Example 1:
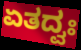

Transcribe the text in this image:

ಏತದ್ವಃ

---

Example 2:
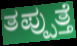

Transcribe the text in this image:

ತಪ್ಪುತ್ತೆ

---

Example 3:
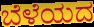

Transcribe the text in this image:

ಬೆಳೆಯದ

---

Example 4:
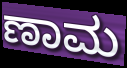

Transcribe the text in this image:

ಣಾಮ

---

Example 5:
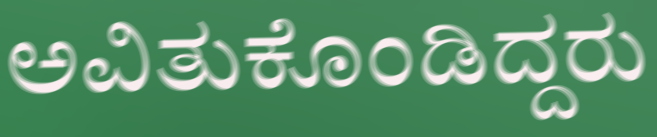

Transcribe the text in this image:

ಅವಿತುಕೊಂಡಿದ್ದರು